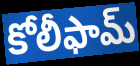
కోలీఫామ్